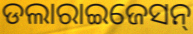
ଡଲାରାଇଜେସନ୍